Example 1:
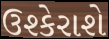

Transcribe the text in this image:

ઉશ્કેરાશે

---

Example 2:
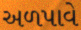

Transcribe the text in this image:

અળપાવે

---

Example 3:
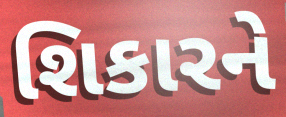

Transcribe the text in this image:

શિકારને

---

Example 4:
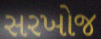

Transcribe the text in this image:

સરખોજ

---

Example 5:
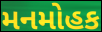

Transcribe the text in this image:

મનમોહક